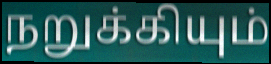
நறுக்கியும்